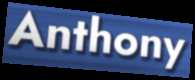
Anthony